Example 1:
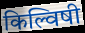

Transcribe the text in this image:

किल्विषी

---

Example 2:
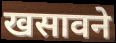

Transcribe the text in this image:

खसावने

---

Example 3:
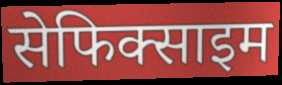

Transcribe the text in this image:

सेफिक्साइम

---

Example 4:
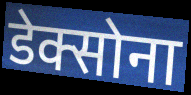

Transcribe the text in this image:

डेक्सोना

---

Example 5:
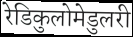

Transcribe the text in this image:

रेडिकुलोमेडुलरी